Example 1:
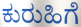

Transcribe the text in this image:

ಕುರುಹಿಗೆ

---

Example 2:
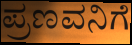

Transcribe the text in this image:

ಪ್ರಣವನಿಗೆ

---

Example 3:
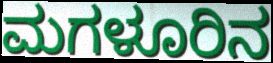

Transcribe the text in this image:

ಮಗಳೂರಿನ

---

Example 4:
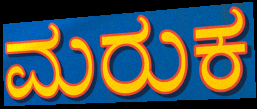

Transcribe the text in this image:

ಮರುಕ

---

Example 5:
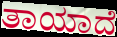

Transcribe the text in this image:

ತಾಯಾದೆ